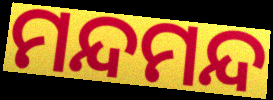
ମନ୍ଦମନ୍ଦ